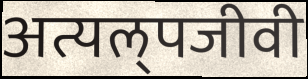
अत्यल्पजीवी